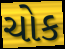
ચોક